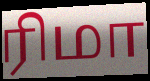
ரிமா